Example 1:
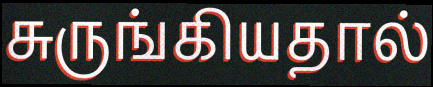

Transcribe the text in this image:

சுருங்கியதால்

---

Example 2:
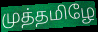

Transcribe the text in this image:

முத்தமிழே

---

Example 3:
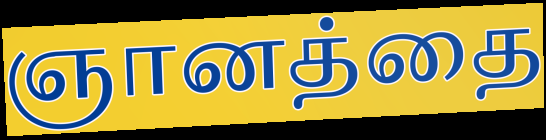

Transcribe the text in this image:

ஞானத்தை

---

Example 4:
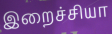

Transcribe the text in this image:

இறைச்சியா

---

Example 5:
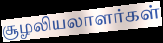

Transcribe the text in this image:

சூழலியலாளர்கள்